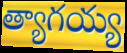
త్యాగయ్య